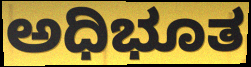
ಅಧಿಭೂತ